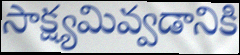
సాక్ష్యమివ్వడానికి